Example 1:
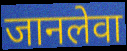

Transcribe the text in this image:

जानलेवा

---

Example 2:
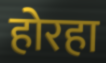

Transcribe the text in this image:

होरहा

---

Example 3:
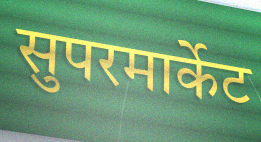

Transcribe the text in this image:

सुपरमार्केट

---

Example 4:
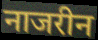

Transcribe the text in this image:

नाजरीन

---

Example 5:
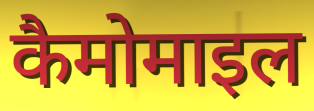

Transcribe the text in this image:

कैमोमाइल